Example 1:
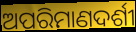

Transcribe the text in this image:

ଅପରିମାଣଦର୍ଶୀ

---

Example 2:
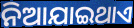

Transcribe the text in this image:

ନିଆଯାଇଥାଏ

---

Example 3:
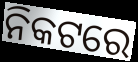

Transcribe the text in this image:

ନିକଟରେ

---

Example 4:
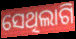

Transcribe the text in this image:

ସେଥିଲାଗି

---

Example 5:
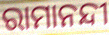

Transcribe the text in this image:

ରାମାନନ୍ଦୀ